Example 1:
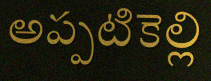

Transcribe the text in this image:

అప్పటికెల్లి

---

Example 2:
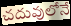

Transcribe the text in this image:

చదువులోనే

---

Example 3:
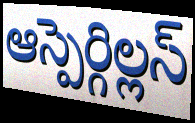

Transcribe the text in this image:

ఆస్పెర్గిల్లస్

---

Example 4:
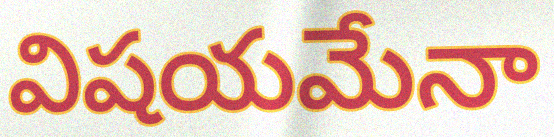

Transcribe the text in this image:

విషయమేనా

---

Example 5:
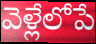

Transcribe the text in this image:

వెళ్లేలోపే